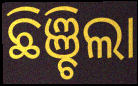
ଛିଞ୍ଚିଲା